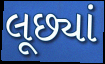
લૂછ્યાં